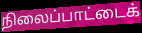
நிலைப்பாட்டைக்